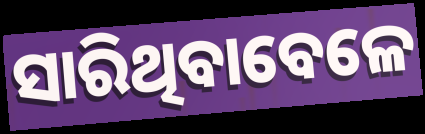
ସାରିଥିବାବେଳେ